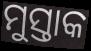
ମୁସ୍ତାକ